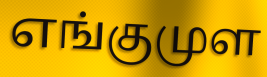
எங்குமுள